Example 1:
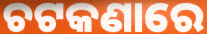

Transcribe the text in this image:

ଚଟକଣାରେ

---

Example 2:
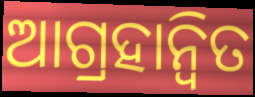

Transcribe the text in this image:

ଆଗ୍ରହାନ୍ୱିତ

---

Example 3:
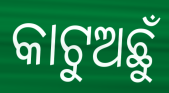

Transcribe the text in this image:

କାଟୁଅଛୁଁ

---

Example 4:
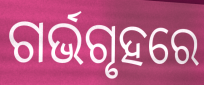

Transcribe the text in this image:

ଗର୍ଭଗୃହରେ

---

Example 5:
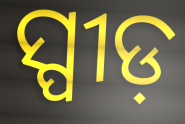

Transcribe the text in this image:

ସ୍ପୀଡ଼